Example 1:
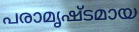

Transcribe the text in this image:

പരാമൃഷ്ടമായ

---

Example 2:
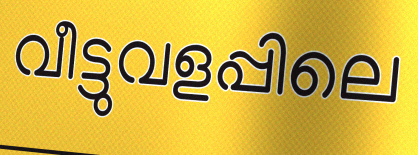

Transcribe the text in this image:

വീട്ടുവളപ്പിലെ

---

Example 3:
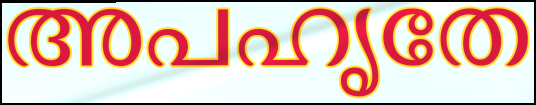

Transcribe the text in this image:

അപഹൃതേ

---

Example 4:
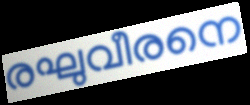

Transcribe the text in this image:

രഘുവീരനെ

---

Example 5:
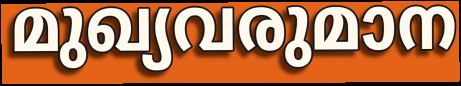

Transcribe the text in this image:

മുഖ്യവരുമാന